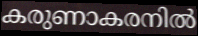
കരുണാകരനിൽ